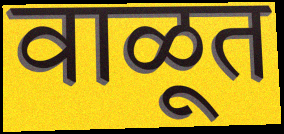
वाळूत